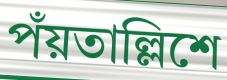
পঁয়তাল্লিশে